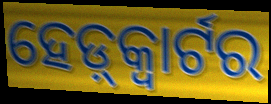
ହେଡ଼୍‌କ୍ୱାର୍ଟର